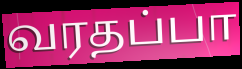
வரதப்பா